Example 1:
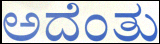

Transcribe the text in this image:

ಅದೆಂತು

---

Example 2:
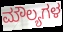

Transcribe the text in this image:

ಮೌಲ್ಯಗಳ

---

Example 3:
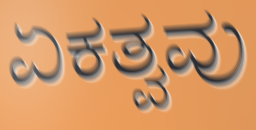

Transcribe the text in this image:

ಏಕತ್ವವು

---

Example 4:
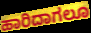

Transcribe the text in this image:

ಹಾರಿದಾಗಲೂ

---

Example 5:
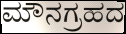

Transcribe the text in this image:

ಮೌನಗ್ರಹದ